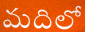
మదిలో